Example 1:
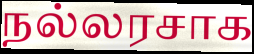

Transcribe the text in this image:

நல்லரசாக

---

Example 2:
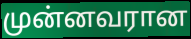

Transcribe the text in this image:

முன்னவரான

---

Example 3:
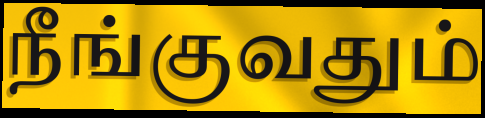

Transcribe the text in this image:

நீங்குவதும்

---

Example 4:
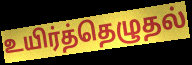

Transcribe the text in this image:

உயிர்த்தெழுதல்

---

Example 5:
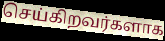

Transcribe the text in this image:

செய்கிறவர்களாக